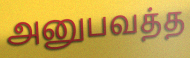
அனுபவத்த